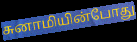
சுனாமியின்போது